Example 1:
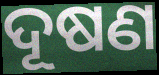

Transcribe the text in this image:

ଦୂଷଣ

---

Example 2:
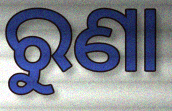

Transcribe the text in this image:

ରୁଣା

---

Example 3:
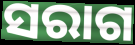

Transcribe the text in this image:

ସରାଗ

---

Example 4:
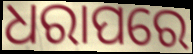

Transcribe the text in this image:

ଧରାପରେ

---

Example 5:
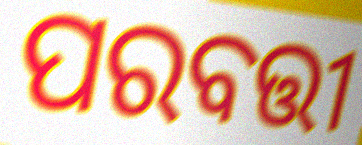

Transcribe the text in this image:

ପରବତ୍ତୀ